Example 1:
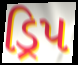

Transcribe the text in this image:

ડ્રિપ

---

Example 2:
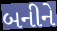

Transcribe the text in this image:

બનીને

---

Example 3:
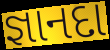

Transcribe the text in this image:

જ્ઞાનદા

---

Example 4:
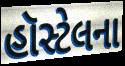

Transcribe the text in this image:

હૉસ્ટેલના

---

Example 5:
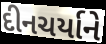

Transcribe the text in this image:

દીનચર્યાને